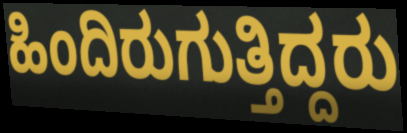
ಹಿಂದಿರುಗುತ್ತಿದ್ದರು